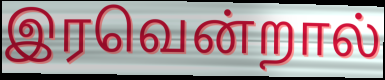
இரவென்றால்